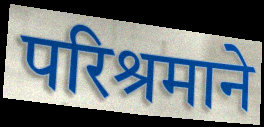
परिश्रमाने